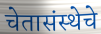
चेतासंस्थेचे